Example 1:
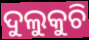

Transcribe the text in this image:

ଦୁଲୁକୁଚି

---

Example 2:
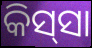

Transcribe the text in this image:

କିସ୍‍ସା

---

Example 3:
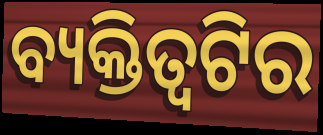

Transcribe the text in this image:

ବ୍ୟକ୍ତିତ୍ୱଟିର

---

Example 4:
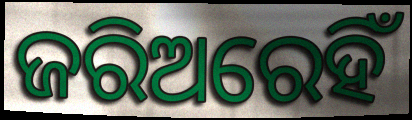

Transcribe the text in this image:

ଜରିଅରେହିଁ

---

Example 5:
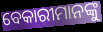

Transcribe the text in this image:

ବେକାରୀମାନଙ୍କୁ